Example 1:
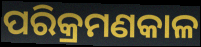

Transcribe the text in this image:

ପରିକ୍ରମଣକାଳ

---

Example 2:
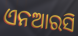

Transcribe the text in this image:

ଏନଆରସି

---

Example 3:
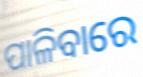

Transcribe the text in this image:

ପାଳିବାରେ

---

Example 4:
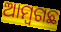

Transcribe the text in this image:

ଆମ୍ୱଗଛ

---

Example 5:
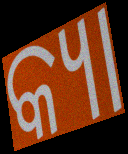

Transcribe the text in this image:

କ୍ୟା